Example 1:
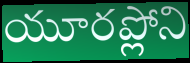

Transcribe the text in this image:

యూరప్లోని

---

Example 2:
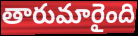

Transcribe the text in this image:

తారుమారైంది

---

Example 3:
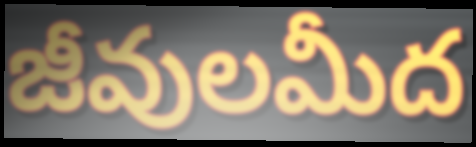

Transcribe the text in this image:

జీవులమీద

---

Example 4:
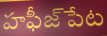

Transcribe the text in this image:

హఫీజ్‌పేట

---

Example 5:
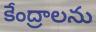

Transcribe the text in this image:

కేంద్రాలను